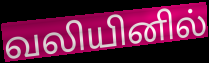
வலியினில்